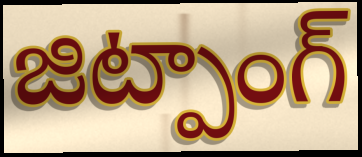
జిట్పాంగ్